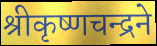
श्रीकृष्णचन्द्रने